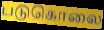
படுகொலை